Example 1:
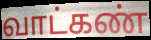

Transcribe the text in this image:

வாட்கண்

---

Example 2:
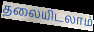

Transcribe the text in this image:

தலையிடலாம்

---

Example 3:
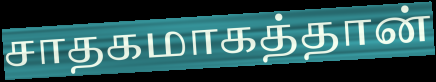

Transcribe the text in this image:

சாதகமாகத்தான்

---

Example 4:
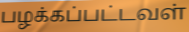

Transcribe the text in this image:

பழக்கப்பட்டவள்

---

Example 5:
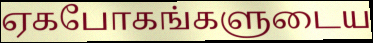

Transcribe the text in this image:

ஏகபோகங்களுடைய